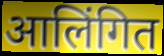
आलिंगित